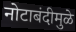
नोटाबंदीमुळे